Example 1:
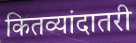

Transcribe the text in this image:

कितव्यांदातरी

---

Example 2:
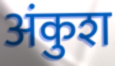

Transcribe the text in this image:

अंकुश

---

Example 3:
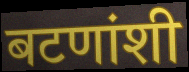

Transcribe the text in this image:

बटणांशी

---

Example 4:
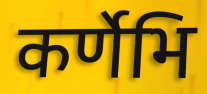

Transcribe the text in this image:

कर्णेभि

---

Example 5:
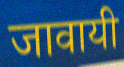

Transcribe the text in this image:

जावायी